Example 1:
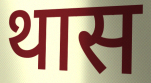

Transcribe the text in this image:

थास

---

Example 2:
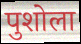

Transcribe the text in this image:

पुशोला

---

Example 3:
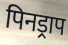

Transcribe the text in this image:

पिनड्राप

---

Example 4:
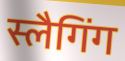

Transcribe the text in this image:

स्लैगिंग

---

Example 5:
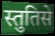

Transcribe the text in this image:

स्तुतिसे